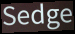
Sedge